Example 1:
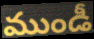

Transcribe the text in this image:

ముండీ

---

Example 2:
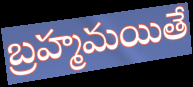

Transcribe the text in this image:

బ్రహ్మమయితే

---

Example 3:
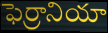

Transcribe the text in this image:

ఫెర్రానియా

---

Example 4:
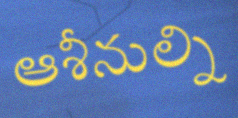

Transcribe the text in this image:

ఆశీనుల్ని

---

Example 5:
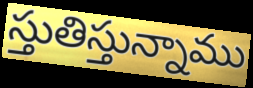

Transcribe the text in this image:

స్తుతిస్తున్నాము